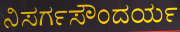
ನಿಸರ್ಗಸೌಂದರ್ಯ